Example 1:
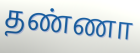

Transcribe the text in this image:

தண்ணா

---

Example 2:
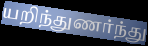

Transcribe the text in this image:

யறிந்துணர்ந்து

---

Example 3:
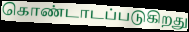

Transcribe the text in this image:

கொண்டாடப்படுகிறது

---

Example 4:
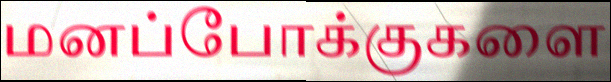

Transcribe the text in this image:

மனப்போக்குகளை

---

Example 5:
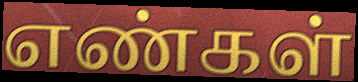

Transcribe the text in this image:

எண்கள்